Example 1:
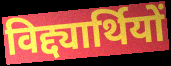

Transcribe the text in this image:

विद्द्यार्थियों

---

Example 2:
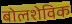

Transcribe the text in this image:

बोलशेविक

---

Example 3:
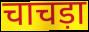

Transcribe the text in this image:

चाचड़ा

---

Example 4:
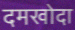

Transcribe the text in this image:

दमखोदा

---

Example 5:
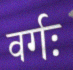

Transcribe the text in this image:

वर्गः